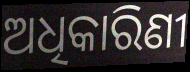
ଅଧିକାରିଣୀ